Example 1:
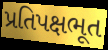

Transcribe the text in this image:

પ્રતિપક્ષભૂત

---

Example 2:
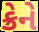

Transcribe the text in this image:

ક્રેને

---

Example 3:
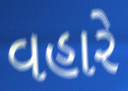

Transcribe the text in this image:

વહારે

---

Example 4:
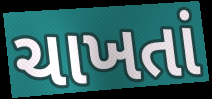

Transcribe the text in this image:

ચાખતાં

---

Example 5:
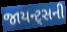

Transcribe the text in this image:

જાયન્ટ્સની